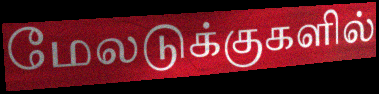
மேலடுக்குகளில்